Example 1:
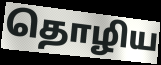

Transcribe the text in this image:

தொழிய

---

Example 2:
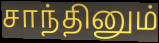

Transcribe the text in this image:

சாந்தினும்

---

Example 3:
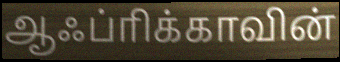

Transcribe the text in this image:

ஆஃப்ரிக்காவின்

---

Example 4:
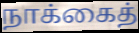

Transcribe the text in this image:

நாக்கைத்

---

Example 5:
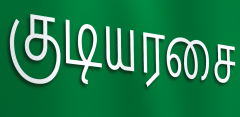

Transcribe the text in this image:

குடியரசை